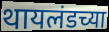
थायलंडच्या